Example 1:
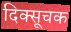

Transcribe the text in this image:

दिक्सूचक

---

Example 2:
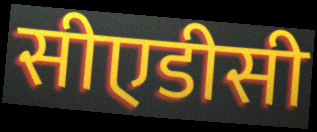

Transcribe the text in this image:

सीएडीसी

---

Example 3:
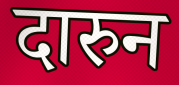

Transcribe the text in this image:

दारुन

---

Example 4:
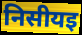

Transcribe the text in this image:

निसीयइ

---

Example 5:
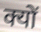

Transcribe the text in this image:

क्‍यों